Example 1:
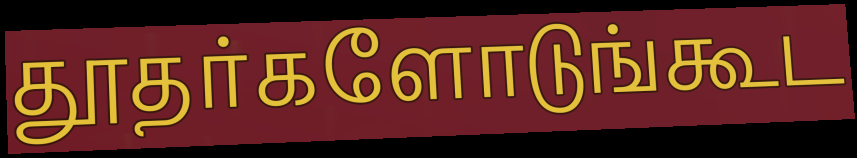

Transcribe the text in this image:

தூதர்களோடுங்கூட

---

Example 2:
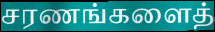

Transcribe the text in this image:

சரணங்களைத்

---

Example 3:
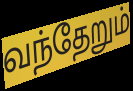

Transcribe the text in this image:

வந்தேறும்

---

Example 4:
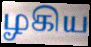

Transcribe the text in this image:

ழகிய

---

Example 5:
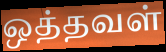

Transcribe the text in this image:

ஒத்தவள்